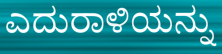
ಎದುರಾಳಿಯನ್ನು